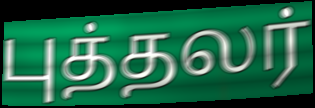
புத்தலர்